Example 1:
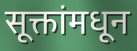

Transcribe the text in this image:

सूक्तांमधून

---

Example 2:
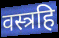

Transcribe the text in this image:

वस्त्रहि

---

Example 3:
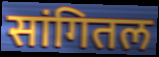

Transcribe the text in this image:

सांगितल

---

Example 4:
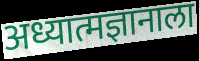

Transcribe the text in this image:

अध्यात्मज्ञानाला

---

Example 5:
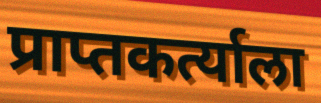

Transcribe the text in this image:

प्राप्तकर्त्याला